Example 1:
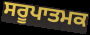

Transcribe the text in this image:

ਸਰੂਪਾਤਮਕ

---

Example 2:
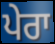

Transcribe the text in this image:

ਪੇਰਾ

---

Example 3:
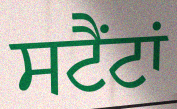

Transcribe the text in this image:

ਸਟੈਂਟਾਂ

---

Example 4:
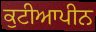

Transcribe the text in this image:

ਕੁਟੀਆਪੀਨ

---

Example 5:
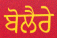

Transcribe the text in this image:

ਬੋਲੈਰੇ